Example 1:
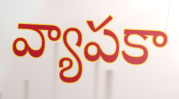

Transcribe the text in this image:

వ్యాపకా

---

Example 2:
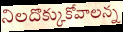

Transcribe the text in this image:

నిలదొక్కుకోవాలన్న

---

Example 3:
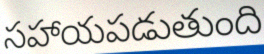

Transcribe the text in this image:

సహాయపడుతుంది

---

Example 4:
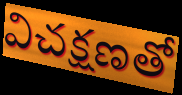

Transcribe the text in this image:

విచక్షణతో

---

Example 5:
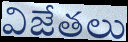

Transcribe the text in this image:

విజేతలు